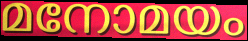
മനോമയം